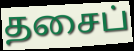
தசைப்